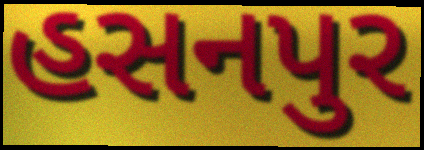
હસનપુર